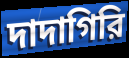
দাদাগিরি